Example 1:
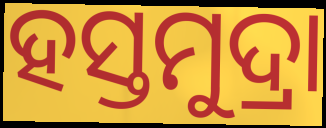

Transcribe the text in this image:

ହସ୍ତମୁଦ୍ରା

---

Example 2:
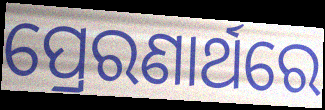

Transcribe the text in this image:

ପ୍ରେରଣାର୍ଥରେ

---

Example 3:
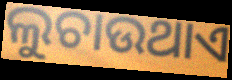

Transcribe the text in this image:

ଲୁଚାଉଥାଏ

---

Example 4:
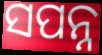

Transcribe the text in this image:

ସପନ୍ନ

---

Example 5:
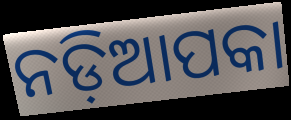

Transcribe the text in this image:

ନଡ଼ିଆପକା